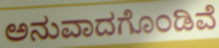
ಅನುವಾದಗೊಂಡಿವೆ